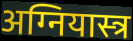
अग्नियास्त्र